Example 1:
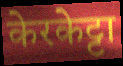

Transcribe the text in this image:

केरकेट्टा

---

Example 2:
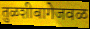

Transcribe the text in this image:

तुळशीबागेजवळ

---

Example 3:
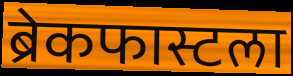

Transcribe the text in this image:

ब्रेकफास्टला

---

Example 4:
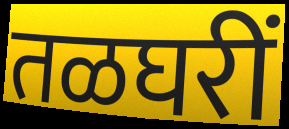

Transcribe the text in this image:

तळघरीं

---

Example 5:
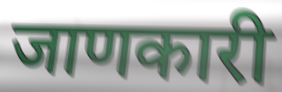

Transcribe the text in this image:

जाणकारी